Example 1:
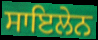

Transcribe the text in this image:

ਸਾਇਲੇਨ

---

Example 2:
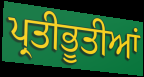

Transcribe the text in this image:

ਪ੍ਰਤੀਭੂਤੀਆਂ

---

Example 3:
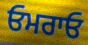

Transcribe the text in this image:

ਓਮਰਾਓ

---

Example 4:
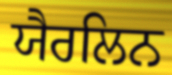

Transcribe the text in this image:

ਯੈਰਲਿਨ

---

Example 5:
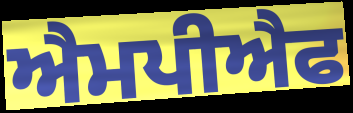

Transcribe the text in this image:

ਐਮਪੀਐਫ